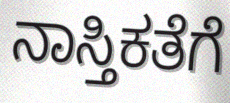
ನಾಸ್ತಿಕತೆಗೆ